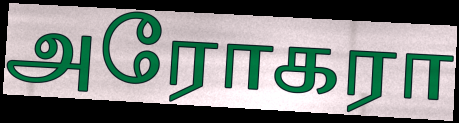
அரோகரா